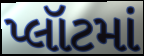
પ્લૉટમાં